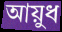
আয়ুধ